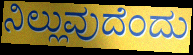
ನಿಲ್ಲುವುದೆಂದು